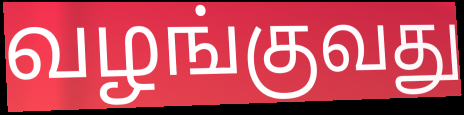
வழங்குவது